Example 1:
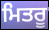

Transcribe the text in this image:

ਮਿਤਰੂ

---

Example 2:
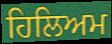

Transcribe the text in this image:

ਹਿਲਿਅਮ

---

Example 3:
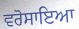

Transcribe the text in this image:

ਵਰੋਸਾਇਆ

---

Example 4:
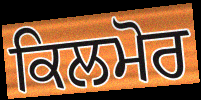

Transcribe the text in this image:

ਕਿਲਮੋਰ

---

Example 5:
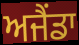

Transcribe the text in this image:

ਅਜੈਂਡਾ